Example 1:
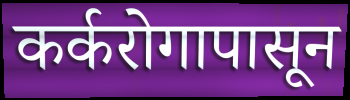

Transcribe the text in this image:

कर्करोगापासून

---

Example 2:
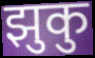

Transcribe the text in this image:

झुकु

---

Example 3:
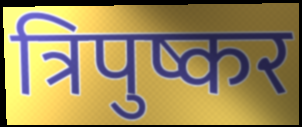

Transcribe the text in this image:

त्रिपुष्कर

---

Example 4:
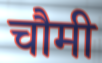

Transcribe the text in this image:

चौमी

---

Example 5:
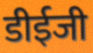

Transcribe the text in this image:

डीईजी